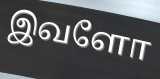
இவளோ